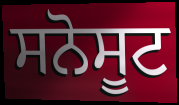
ਸਨੋਸੂਟ